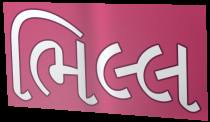
ભિલ્લ